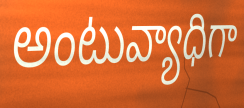
అంటువ్యాధిగా